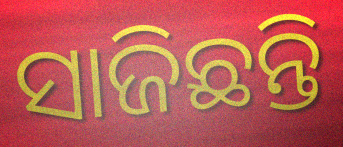
ସାଜିଛନ୍ତି